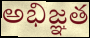
అభిజ్ఞత